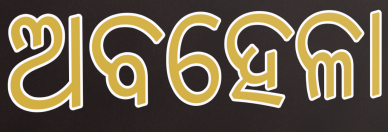
ଅବହେଳା